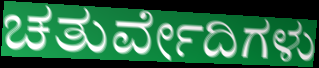
ಚತುರ್ವೇದಿಗಳು